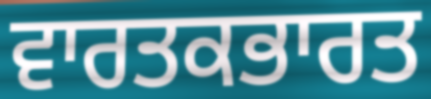
ਵਾਰਤਕਭਾਰਤ